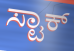
ಸ್ಟಾಕ್